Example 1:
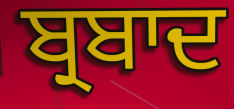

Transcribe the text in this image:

ਬ੍ਰਬਾਦ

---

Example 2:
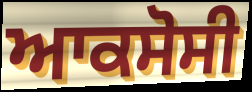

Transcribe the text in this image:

ਆਕਸੋਸੀ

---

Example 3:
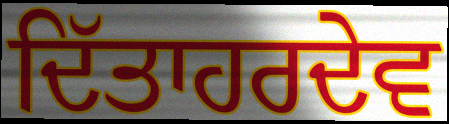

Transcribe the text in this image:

ਦਿੱਤਾਹਰਦੇਵ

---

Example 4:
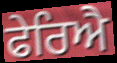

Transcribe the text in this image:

ਫੇਰਿਐ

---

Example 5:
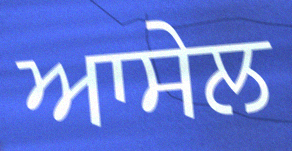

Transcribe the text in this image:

ਆਸੇਲ